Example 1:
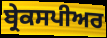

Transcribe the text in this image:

ਬ੍ਰੇਕਸਪੀਅਰ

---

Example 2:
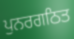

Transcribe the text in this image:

ਪੁਨਰਗਠਿਤ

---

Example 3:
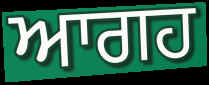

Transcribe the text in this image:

ਆਗਹ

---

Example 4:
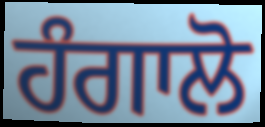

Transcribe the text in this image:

ਹੰਗਾਲੋ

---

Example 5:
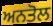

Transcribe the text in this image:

ਅਨਤੋਲ